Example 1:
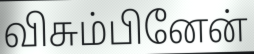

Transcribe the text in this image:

விசும்பினேன்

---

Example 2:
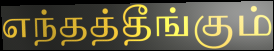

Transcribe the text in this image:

எந்தத்தீங்கும்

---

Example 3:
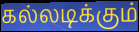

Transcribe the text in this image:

கல்லடிக்கும்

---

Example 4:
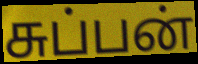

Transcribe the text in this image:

சுப்பன்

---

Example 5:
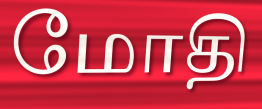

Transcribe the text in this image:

மோதி